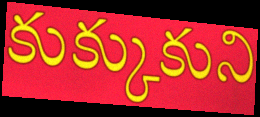
కుక్కుకుని